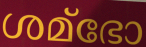
ശമ്ഭോ